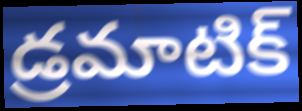
డ్రమాటిక్